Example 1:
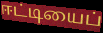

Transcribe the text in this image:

ஈட்டியைப்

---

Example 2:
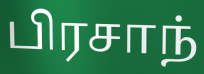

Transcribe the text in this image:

பிரசாந்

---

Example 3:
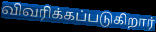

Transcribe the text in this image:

விவரிக்கப்படுகிறார்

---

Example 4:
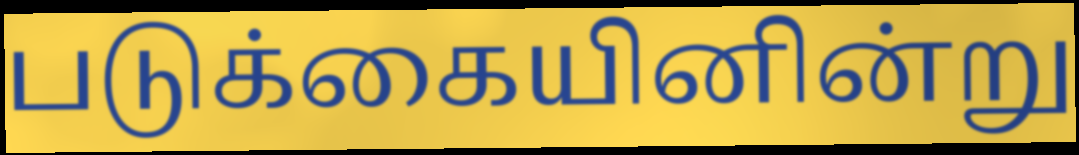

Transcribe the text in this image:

படுக்கையினின்று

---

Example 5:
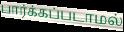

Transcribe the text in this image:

பார்க்கப்படாமல்